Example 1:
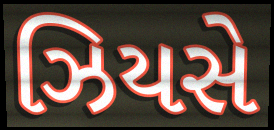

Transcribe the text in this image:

ઝિયસે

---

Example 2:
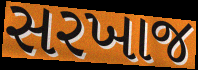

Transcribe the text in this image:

સરખાજ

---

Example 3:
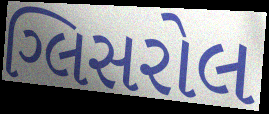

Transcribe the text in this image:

ગ્લિસરોલ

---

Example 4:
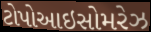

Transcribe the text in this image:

ટોપોઆઇસોમરેઝ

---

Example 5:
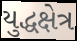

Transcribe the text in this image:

યુદ્ધક્ષેત્ર